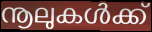
നൂലുകൾക്ക്